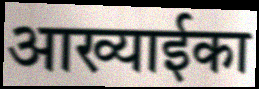
आख्याईका